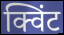
क्विंट